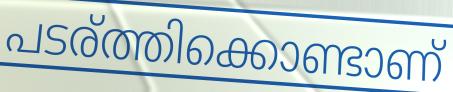
പടര്ത്തിക്കൊണ്ടാണ്